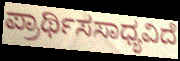
ಪ್ರಾರ್ಥಿಸಸಾಧ್ಯವಿದೆ